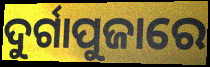
ଦୁର୍ଗାପୁଜାରେ